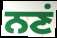
ਨਣਂ